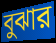
বুঝার